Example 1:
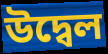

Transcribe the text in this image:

উদ্বেল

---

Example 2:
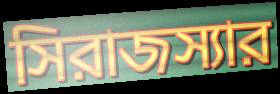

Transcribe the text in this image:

সিরাজস্যার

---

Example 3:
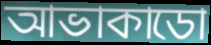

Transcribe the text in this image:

আভাকাডো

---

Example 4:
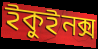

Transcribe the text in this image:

ইকুইনক্স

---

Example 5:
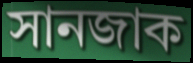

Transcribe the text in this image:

সানজাক